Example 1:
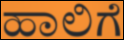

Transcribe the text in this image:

ಹಾಲಿಗೆ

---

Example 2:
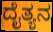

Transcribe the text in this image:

ದೈತ್ಯನ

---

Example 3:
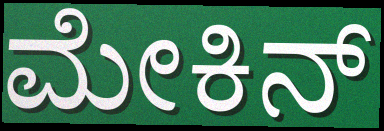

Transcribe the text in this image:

ಮೇಕಿನ್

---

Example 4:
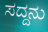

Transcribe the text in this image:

ಸದ್ದನು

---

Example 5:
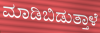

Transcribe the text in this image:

ಮಾಡಿಬಿಡುತ್ತಾಳೆ